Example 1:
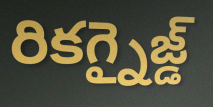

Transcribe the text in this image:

రికగ్నైజ్డ్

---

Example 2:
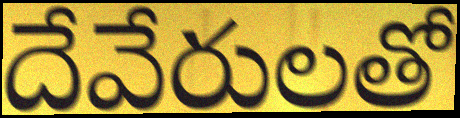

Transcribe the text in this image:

దేవేరులతో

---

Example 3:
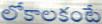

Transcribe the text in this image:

లోకాలకంటే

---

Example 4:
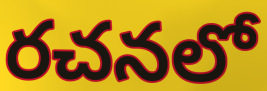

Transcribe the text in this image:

రచనలో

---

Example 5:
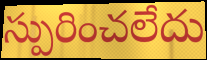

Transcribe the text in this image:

స్పురించలేదు